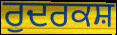
ਰੁਦਰਕਸ਼